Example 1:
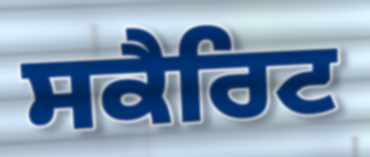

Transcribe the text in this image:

ਸਕੈਰਿਟ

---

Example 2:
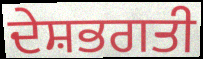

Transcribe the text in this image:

ਦੇਸ਼ਭਗਤੀ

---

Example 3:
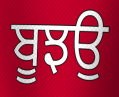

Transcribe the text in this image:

ਬੂਝਉ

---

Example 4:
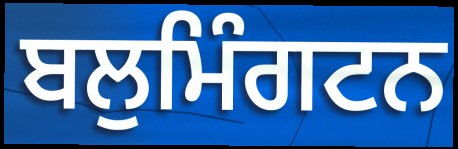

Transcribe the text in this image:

ਬਲੁਮਿੰਗਟਨ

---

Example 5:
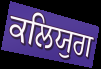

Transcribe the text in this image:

ਕਲਿਯੁਗ